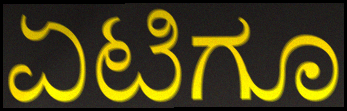
ಏಟಿಗೂ